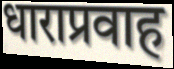
धाराप्रवाह